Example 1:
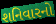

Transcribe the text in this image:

શનિવારનો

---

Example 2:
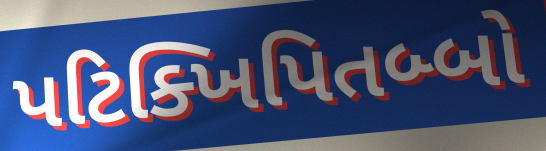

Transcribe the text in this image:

પટિક્ખિપિતબ્બો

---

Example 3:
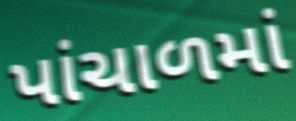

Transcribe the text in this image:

પાંચાળમાં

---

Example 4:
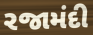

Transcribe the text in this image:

રજામંદી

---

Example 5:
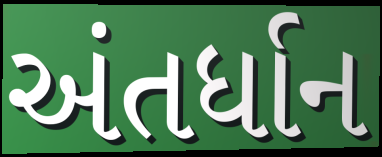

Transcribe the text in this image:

અંતર્ધાન